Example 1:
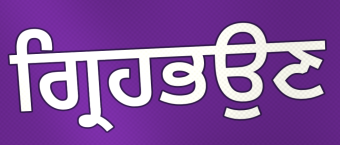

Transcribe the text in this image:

ਗ੍ਰਿਹਭਉਣ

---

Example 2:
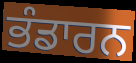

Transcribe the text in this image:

ਭੰਡਾਰਨ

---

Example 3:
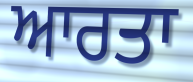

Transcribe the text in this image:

ਆਰਤਾ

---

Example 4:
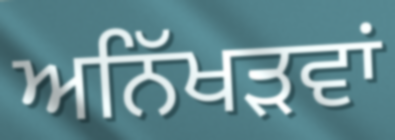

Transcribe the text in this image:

ਅਨਿੱਖੜਵਾਂ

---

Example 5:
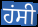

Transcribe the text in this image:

ਹਂਸੀ